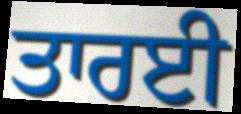
ਤਾਰਈ